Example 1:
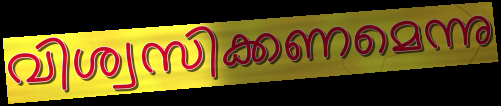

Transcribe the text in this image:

വിശ്വസിക്കണമെന്നു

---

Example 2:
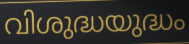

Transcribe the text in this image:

വിശുദ്ധയുദ്ധം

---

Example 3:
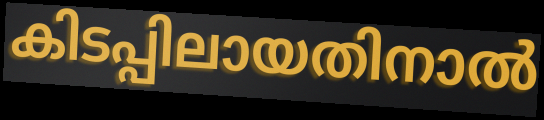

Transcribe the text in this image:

കിടപ്പിലായതിനാൽ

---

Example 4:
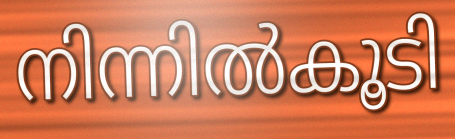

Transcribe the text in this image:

നിന്നിൽകൂടി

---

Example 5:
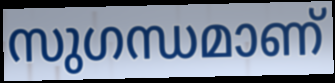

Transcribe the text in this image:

സുഗന്ധമാണ്